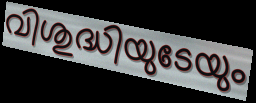
വിശുദ്ധിയുടേയും